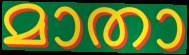
മാതാ